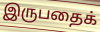
இருபதைக்